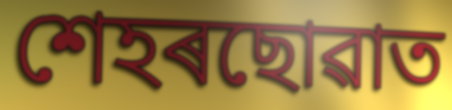
শেহৰছোৱাত